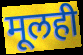
मूलही